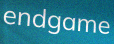
endgame